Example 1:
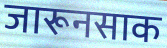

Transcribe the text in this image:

जारूनसाक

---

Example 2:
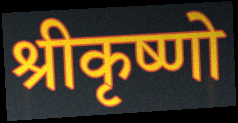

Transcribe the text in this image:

श्रीकृष्णो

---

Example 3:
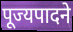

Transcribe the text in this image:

पूज्यपादने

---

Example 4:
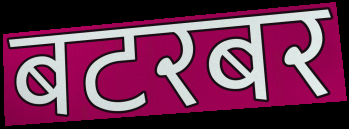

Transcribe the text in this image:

बटरबर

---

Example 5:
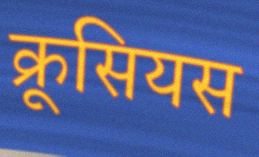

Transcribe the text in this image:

क्रूसियस